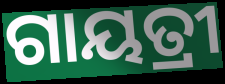
ଗାୟତ୍ରୀ